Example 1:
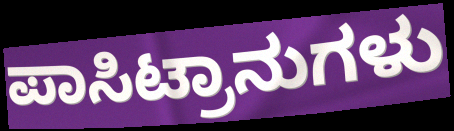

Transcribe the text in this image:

ಪಾಸಿಟ್ರಾನುಗಳು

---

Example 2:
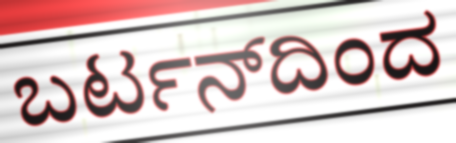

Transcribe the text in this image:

ಬರ್ಟನ್‌ದಿಂದ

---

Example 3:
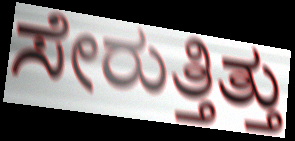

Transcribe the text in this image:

ಸೇರುತ್ತಿತ್ತು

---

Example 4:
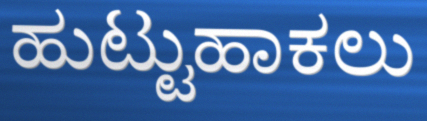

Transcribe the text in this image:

ಹುಟ್ಟುಹಾಕಲು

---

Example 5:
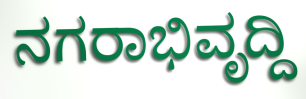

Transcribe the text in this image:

ನಗರಾಭಿವೃದ್ದಿ